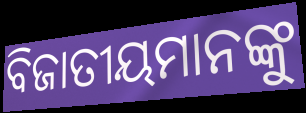
ବିଜାତୀୟମାନଙ୍କୁ